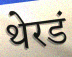
थेरडं